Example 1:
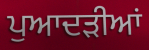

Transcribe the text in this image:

ਪੁਆਦੜੀਆਂ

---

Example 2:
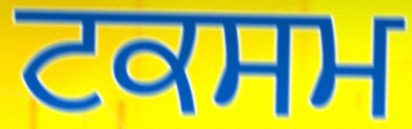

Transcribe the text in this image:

ਟਕਸਮ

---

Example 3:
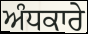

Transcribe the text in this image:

ਅੰਧਕਾਰੇ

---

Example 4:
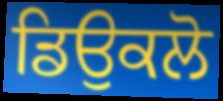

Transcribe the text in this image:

ਡਿਉਕਲੋ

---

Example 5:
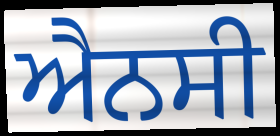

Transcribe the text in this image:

ਐਨਸੀ